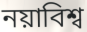
নয়াবিশ্ব